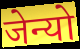
जेन्यो